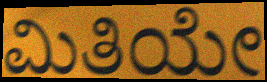
ಮಿತಿಯೇ